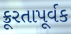
ક્રૂરતાપૂર્વક